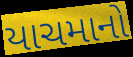
યાચમાનો